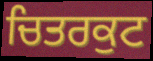
ਚਿਤਰਕੁਟ